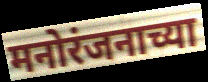
मनोरंजनाच्या